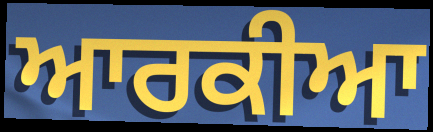
ਆਰਕੀਆ